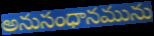
అనుసంధానమును